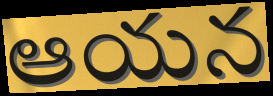
ఆయన